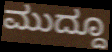
ಮುದ್ದೂ